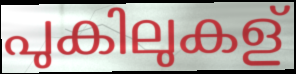
പുകിലുകള്